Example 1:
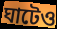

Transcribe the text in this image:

ঘাটেও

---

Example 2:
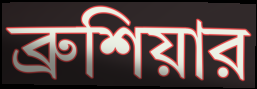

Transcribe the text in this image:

ব্রুশিয়ার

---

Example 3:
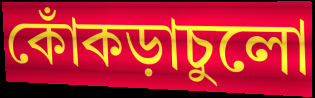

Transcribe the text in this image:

কোঁকড়াচুলো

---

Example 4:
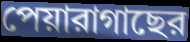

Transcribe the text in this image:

পেয়ারাগাছের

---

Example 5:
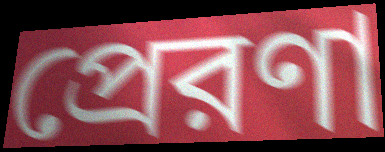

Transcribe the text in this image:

প্রেরণা